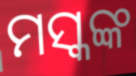
ମସ୍କଙ୍କ